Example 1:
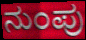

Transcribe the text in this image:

ನುಂಪು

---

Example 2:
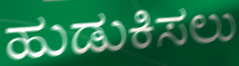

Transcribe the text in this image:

ಹುಡುಕಿಸಲು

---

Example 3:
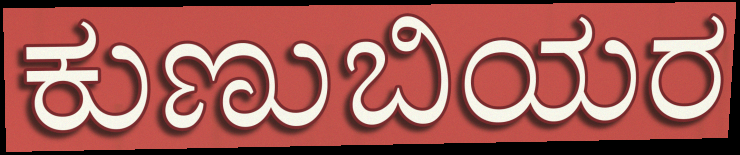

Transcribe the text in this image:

ಕುಣುಬಿಯರ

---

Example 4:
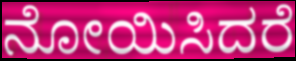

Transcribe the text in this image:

ನೋಯಿಸಿದರೆ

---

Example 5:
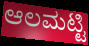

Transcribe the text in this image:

ಆಲಮಟ್ಟಿ